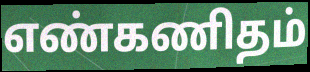
எண்கணிதம்